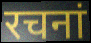
रचनां